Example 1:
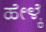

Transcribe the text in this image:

ಹೇಳ್ಕೆ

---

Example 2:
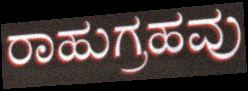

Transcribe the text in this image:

ರಾಹುಗ್ರಹವು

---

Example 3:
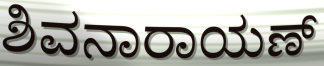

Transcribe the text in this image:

ಶಿವನಾರಾಯಣ್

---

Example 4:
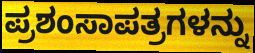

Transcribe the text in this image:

ಪ್ರಶಂಸಾಪತ್ರಗಳನ್ನು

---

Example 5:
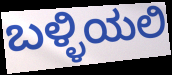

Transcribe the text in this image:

ಬಳ್ಳಿಯಲಿ